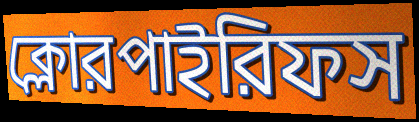
ক্লোরপাইরিফস